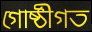
গোষ্ঠীগত